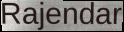
Rajendar